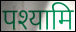
पश्यामि